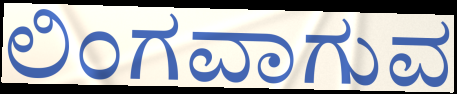
ಲಿಂಗವಾಗುವ